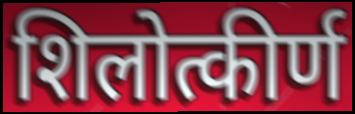
शिलोत्कीर्ण